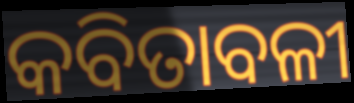
କବିତାବଳୀ